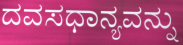
ದವಸಧಾನ್ಯವನ್ನು